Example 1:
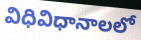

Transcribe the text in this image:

విధివిధానాలలో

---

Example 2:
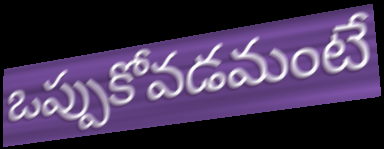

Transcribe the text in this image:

ఒప్పుకోవడమంటే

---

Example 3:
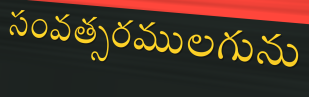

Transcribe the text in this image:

సంవత్సరములగును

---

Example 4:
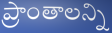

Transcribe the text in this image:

ప్రాంతాలన్ని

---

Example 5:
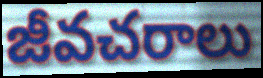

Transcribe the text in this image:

జీవచరాలు